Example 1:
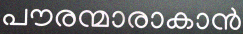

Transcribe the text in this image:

പൗരന്മാരാകാൻ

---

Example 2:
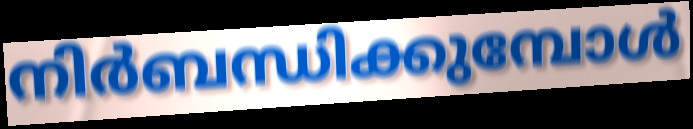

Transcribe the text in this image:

നിർബന്ധിക്കുമ്പോൾ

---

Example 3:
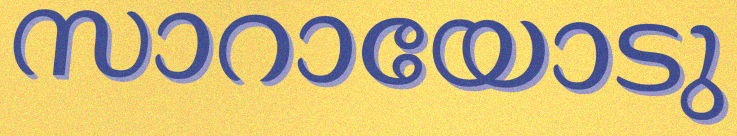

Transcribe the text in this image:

സാറായോടു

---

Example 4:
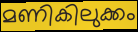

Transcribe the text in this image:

മണികിലുക്കം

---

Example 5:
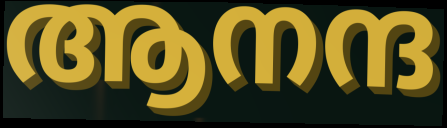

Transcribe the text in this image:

ആനന്ദ